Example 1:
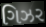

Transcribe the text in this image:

ગિઝર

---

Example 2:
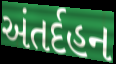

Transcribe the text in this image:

અંતર્દહન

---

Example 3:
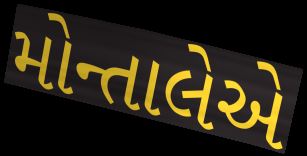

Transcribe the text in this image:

મોન્તાલેએ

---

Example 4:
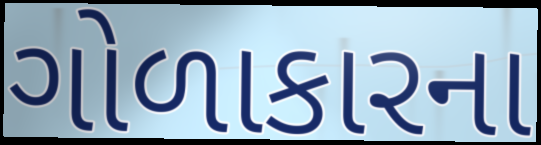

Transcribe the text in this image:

ગોળાકારના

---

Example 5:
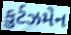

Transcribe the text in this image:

કુર્ટઝમેન